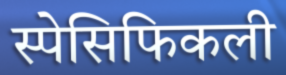
स्पेसिफिकली